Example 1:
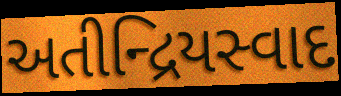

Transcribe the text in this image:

અતીન્દ્રિયસ્વાદ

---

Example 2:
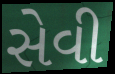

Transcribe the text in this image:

સેવી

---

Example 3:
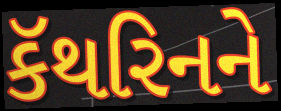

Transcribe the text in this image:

કૅથરિનને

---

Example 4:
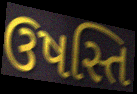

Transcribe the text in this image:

ઉષસ્તિ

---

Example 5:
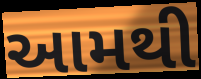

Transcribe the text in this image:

આમથી